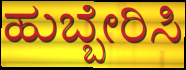
ಹುಬ್ಬೇರಿಸಿ